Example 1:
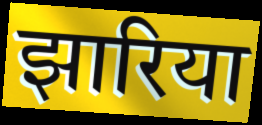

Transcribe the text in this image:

झारिया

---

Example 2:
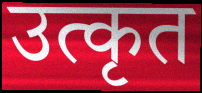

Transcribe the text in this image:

उत्कृत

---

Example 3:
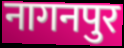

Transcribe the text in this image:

नागनपुर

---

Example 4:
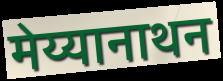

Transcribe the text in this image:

मेय्यानाथन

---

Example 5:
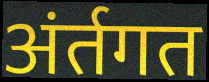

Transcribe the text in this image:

अंर्तगत